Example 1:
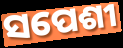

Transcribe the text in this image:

ସପେଶୀ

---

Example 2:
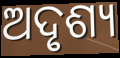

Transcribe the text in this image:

ଅଦୃଶ୍ୟ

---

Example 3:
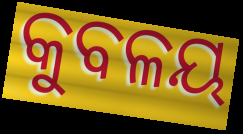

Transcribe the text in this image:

କୁବଳୟ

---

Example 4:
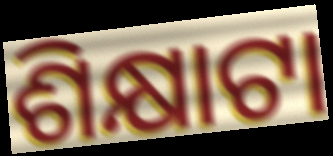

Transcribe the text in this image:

ଶିକ୍ଷାଟା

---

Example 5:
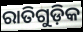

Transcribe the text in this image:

ରାତିଗୁଡ଼ିକ